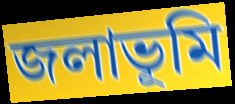
জলাভূমি